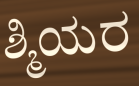
ಶ್ಮಿಯರ